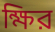
ক্ষির